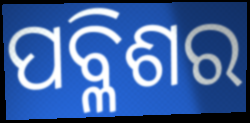
ପବ୍ଳିଶର